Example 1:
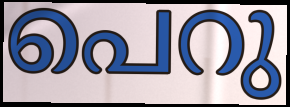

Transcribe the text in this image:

പെറു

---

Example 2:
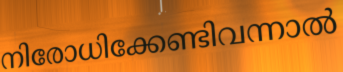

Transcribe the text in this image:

നിരോധിക്കേണ്ടിവന്നാൽ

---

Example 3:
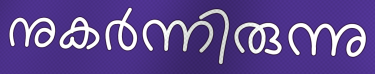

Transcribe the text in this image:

നുകർന്നിരുന്നു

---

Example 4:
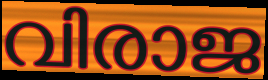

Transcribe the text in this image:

വിരാജ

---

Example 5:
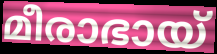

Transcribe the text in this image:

മീരാഭായ്